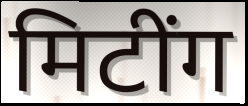
मिटींग